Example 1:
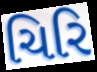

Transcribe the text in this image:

ચિરિ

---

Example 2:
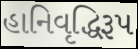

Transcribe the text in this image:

હાનિવૃદ્ધિરૂપ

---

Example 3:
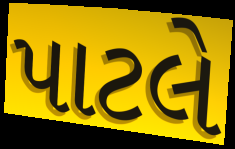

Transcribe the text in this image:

પાટલે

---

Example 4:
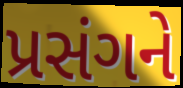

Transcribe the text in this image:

પ્રસંગને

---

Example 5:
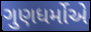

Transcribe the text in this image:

ગુણધર્મોએ